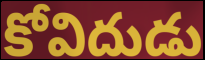
కోవిదుడు